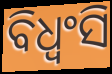
ବିଧ୍ୱଂସି